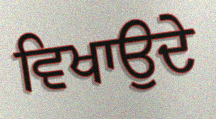
ਵਿਖਾਉਦੇ